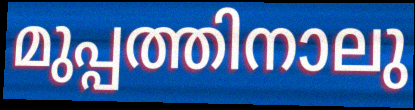
മുപ്പത്തിനാലു